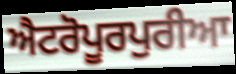
ਐਟਰੋਪੂਰਪੁਰੀਆ